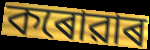
কৰোৱাৰ